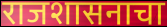
राजशासनाचा